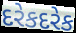
દરેકદરેક